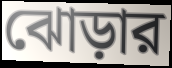
ঝোড়ার